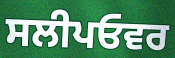
ਸਲੀਪਓਵਰ